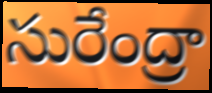
సురేంద్రా